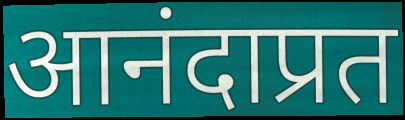
आनंदाप्रत